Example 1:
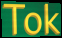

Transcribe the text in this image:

Tok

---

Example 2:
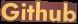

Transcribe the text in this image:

Github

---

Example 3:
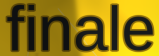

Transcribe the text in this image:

finale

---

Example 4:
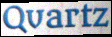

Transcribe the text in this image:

Quartz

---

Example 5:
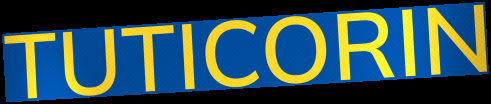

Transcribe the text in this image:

TUTICORIN